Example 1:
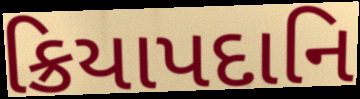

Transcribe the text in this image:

ક્રિયાપદાનિ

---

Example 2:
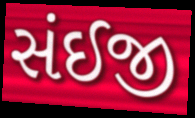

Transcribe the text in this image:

સંઈજી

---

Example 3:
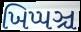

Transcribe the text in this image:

ખિપ્પઞ્ચ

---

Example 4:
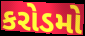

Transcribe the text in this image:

કરોડમો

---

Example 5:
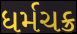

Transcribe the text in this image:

ધર્મચક્ર